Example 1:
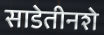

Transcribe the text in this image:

साडेतीनशे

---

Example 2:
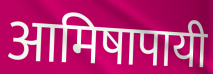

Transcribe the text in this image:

आमिषापायी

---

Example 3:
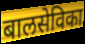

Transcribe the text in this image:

बालसेविका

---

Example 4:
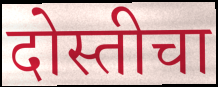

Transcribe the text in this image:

दोस्तीचा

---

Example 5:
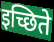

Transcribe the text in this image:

इच्छिते